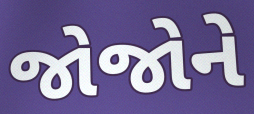
જોજોને